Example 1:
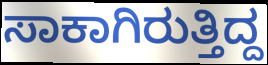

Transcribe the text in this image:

ಸಾಕಾಗಿರುತ್ತಿದ್ದ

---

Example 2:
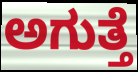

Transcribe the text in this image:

ಅಗುತ್ತೆ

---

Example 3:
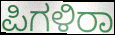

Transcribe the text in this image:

ಪಿಗಳಿರಾ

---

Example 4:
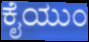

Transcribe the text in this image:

ಕೈಯುಂ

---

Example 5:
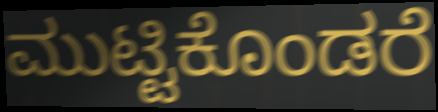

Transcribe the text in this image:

ಮುಟ್ಟಿಕೊಂಡರೆ